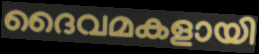
ദൈവമകളായി